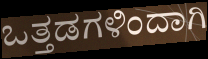
ಒತ್ತಡಗಳಿಂದಾಗಿ